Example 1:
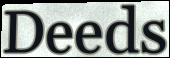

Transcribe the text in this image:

Deeds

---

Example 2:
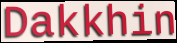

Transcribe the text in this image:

Dakkhin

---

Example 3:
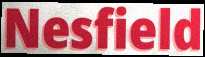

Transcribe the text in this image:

Nesfield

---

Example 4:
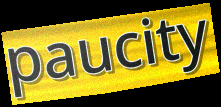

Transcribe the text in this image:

paucity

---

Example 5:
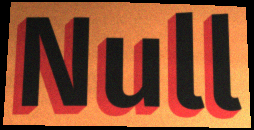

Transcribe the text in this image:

Null